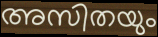
അസിതയും